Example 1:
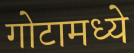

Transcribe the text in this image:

गोटामध्ये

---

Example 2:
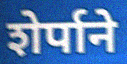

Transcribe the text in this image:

शेर्पाने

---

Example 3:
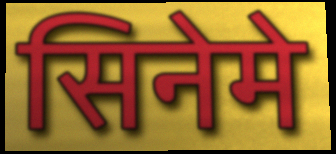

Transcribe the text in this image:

सिनेमे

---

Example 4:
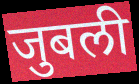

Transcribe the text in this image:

जुबली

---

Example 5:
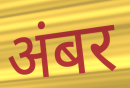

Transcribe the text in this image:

अंबर